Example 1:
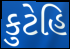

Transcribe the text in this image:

કુટેહિ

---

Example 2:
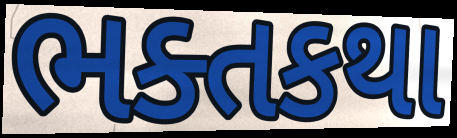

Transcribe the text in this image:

ભક્તકથા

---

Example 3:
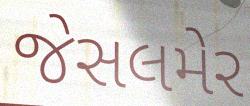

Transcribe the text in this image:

જેસલમેર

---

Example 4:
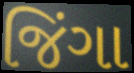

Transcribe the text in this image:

જિંગા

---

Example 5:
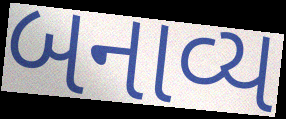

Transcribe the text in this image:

બનાવ્ય